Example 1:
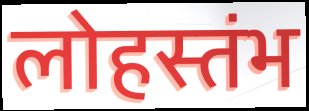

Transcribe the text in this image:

लोहस्तंभ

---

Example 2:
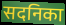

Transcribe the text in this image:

सदनिका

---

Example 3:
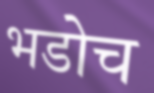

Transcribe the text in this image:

भडोच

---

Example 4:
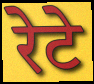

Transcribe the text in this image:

रेटे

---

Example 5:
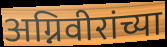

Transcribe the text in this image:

अग्निवीरांच्या